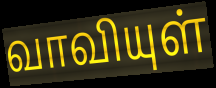
வாவியுள்